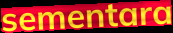
sementara